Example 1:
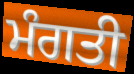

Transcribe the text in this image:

ਮੰਗਤੀ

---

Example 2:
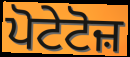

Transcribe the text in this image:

ਪੋਟੇਟੋਜ਼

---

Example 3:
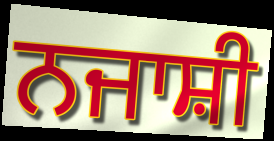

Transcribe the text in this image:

ਨਜਾਸ਼ੀ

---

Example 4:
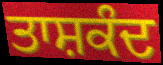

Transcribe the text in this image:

ਤਾਸ਼ਕੰਦ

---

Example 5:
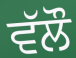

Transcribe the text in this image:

ਵੱਲੌ